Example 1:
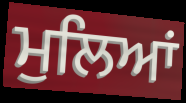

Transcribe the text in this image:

ਮੁਲਿਆਂ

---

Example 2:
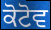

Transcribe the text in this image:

ਕੋਟੋਵ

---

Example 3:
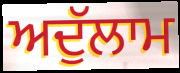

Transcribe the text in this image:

ਅਦੁੱਲਾਮ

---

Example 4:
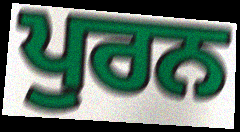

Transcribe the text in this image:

ਪੁਰਨ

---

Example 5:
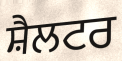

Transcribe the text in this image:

ਸ਼ੈਲਟਰ